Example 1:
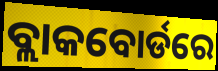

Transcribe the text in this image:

ବ୍ଲାକବୋର୍ଡରେ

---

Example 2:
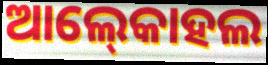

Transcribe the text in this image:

ଆଲ୍‍କୋହଲ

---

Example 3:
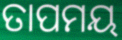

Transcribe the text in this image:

ତାପମୟ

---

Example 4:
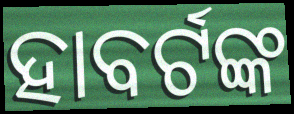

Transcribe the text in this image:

ହାବର୍ଟଙ୍କ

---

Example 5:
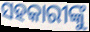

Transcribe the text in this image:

ସହକାରୀଙ୍କୁ